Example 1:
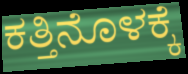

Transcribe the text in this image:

ಕತ್ತಿನೊಳಕ್ಕೆ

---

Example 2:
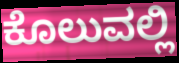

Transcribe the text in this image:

ಕೊಲುವಲ್ಲಿ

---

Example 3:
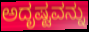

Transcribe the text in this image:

ಅದೃಷ್ಟವನ್ನು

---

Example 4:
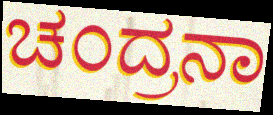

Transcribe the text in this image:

ಚಂದ್ರನಾ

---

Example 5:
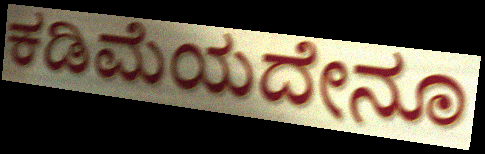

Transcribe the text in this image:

ಕಡಿಮೆಯದೇನೂ